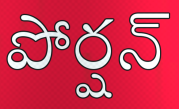
పోర్షన్